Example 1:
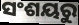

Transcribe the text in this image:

ସଂଶୟରୁ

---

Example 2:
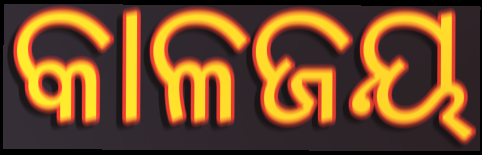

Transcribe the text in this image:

କାଳଜୟ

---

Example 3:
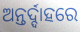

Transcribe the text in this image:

ଅନ୍ତର୍ଦ୍ଦାହରେ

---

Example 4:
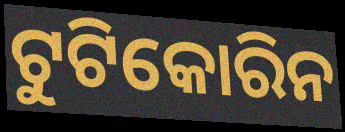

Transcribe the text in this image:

ଟୁଟିକୋରିନ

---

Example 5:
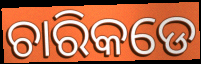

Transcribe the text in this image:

ଚାରିକଡେ